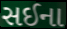
સઈના